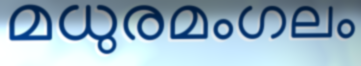
മധുരമംഗലം